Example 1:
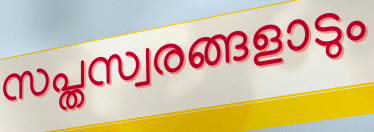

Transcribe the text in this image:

സപ്തസ്വരങ്ങളാടും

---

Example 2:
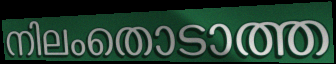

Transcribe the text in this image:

നിലംതൊടാത്ത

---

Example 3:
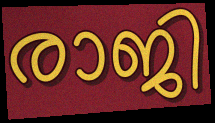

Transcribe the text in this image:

രാജി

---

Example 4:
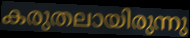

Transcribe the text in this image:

കരുതലായിരുന്നു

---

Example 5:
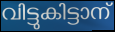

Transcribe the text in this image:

വിട്ടുകിട്ടാന്